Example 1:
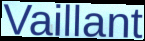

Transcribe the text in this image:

Vaillant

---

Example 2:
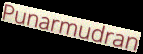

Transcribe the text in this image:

Punarmudran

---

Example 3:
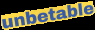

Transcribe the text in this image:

unbetable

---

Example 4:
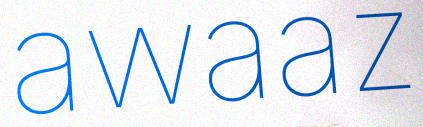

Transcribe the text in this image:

awaaz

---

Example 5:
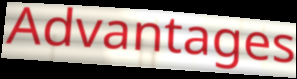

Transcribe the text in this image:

Advantages